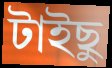
টাইছু